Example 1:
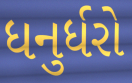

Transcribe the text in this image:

ધનુર્ધરો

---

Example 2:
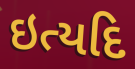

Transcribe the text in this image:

ઇત્યદિ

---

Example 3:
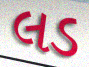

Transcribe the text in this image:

લડ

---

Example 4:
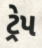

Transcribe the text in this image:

ટ્રેપ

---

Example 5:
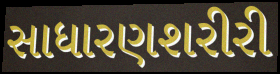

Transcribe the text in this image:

સાધારણશરીરી